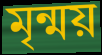
মৃন্ময়